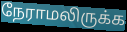
நேராமலிருக்க